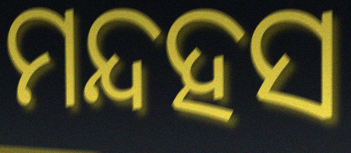
ମନ୍ଦହସ